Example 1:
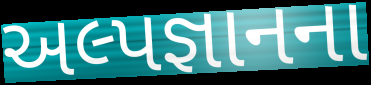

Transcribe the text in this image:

અલ્પજ્ઞાનના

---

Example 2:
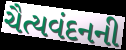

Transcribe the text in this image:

ચૈત્યવંદનની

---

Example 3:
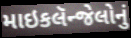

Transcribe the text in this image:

માઇકલૅન્જેલોનું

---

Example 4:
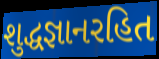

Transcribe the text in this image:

શુદ્ધજ્ઞાનરહિત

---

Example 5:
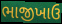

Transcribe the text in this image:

ભાજીખાઉ